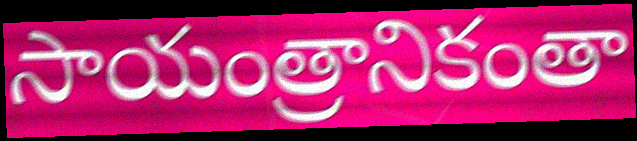
సాయంత్రానికంతా